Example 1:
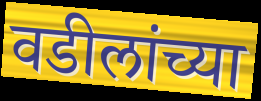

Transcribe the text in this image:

वडीलांच्या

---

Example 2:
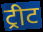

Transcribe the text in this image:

ट्रीट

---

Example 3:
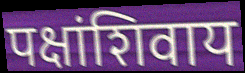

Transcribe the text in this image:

पक्षांशिवाय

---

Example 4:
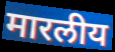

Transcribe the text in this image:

मारलीय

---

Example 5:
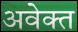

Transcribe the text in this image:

अवेक्त